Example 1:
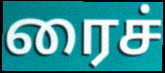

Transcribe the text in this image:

ரைச்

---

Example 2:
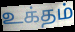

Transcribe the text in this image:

உக்தம்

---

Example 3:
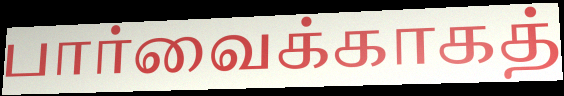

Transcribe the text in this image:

பார்வைக்காகத்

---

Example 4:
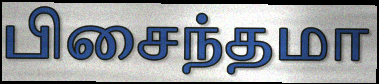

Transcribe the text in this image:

பிசைந்தமா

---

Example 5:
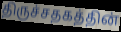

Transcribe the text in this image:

திருச்சதகத்தின்